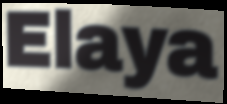
Elaya